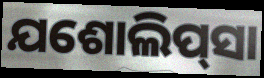
ଯଶୋଲିପ୍‌ସା